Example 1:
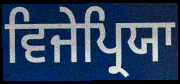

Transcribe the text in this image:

ਵਿਜੇਪ੍ਰਿਯਾ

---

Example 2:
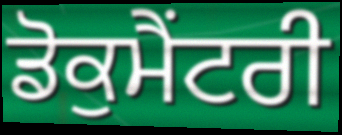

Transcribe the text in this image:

ਡੋਕੁਮੈਂਟਰੀ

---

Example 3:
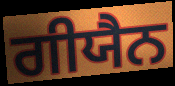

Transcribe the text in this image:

ਗੀਯੈਨ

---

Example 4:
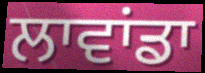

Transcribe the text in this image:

ਲਾਵਾਂਡਾ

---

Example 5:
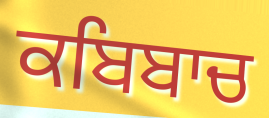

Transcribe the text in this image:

ਕਬਿਬਾਚ